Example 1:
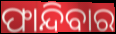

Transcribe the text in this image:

ଫାନ୍ଦିବାର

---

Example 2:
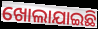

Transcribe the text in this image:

ଖୋଲାଯାଇଛି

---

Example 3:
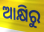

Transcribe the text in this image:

ଆକ୍ଷିରୁ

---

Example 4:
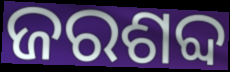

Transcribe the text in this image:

ଜରଶବ୍ଦ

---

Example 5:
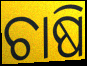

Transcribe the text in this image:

ଚାଷି